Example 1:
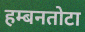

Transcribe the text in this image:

हम्बनतोटा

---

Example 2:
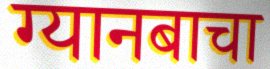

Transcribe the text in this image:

ग्यानबाचा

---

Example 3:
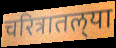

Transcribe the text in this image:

चरित्रातल्या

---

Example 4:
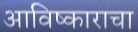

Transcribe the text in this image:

आविष्काराचा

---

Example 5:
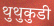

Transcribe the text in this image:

थुथुकुडी